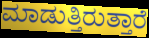
ಮಾಡುತ್ತಿರುತ್ತಾರೆ